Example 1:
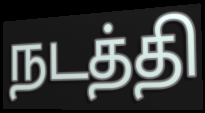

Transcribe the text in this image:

நடத்தி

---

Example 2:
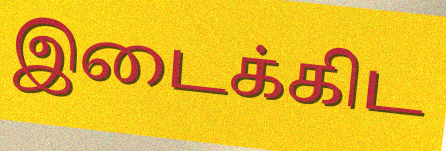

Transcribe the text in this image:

இடைக்கிட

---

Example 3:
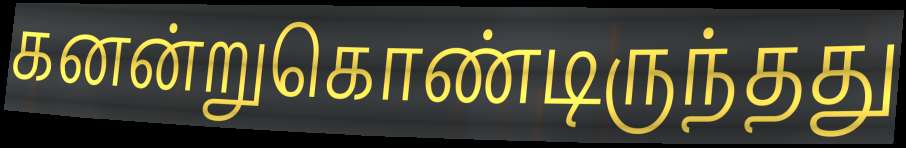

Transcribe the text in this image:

கனன்றுகொண்டிருந்தது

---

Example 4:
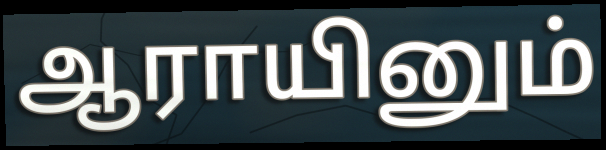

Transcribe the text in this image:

ஆராயினும்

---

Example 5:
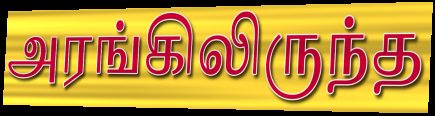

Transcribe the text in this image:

அரங்கிலிருந்த